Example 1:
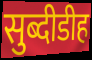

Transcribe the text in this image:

सुब्दीडीह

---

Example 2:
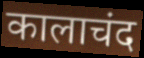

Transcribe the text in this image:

कालाचंद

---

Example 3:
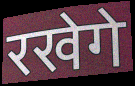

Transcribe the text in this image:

रखेगे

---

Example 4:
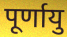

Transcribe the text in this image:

पूर्णायु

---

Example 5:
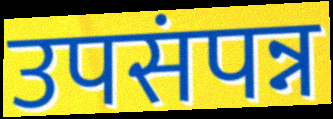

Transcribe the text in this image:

उपसंपन्न